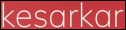
kesarkar